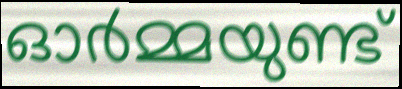
ഓർമ്മയുണ്ട്